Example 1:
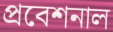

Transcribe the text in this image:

প্রবেশনাল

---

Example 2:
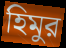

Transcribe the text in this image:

হিমুর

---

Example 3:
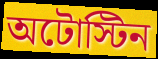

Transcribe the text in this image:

অটোস্টিন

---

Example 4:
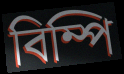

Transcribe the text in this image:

বিম্পি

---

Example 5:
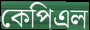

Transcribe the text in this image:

কেপিএল